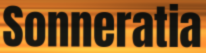
Sonneratia